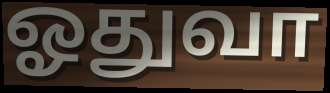
ஓதுவா